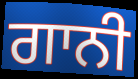
ਗਾਨੀ